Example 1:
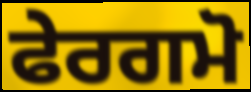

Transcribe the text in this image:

ਫੇਰਗਮੋ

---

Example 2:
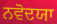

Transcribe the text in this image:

ਨਵੋਦਯਾ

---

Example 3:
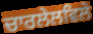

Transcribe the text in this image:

ਚਾਰਲੇਲਵਿਲੇ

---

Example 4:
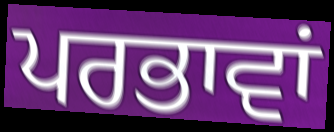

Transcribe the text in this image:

ਪਰਭਾਵਾਂ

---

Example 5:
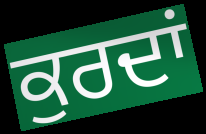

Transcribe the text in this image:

ਕੁਰਦਾਂ